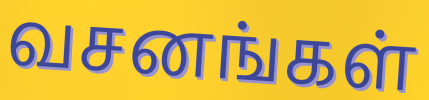
வசனங்கள்